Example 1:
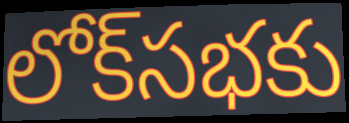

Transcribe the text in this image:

లోక్‌సభకు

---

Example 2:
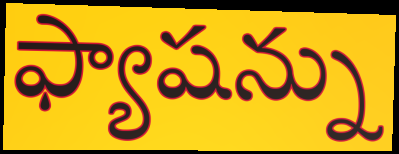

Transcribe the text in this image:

ఫ్యాషన్ను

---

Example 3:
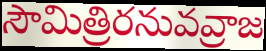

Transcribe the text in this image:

సౌమిత్రిరనువవ్రాజ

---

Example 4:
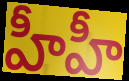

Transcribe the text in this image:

హీహీ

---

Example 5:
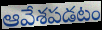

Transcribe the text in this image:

ఆవేశపడటం